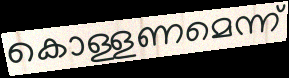
കൊള്ളണമെന്ന്